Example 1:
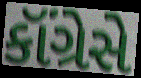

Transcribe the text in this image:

કૉંગ્રેસે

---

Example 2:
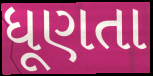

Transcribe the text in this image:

ધૂણતા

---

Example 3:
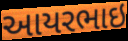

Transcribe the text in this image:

આયરભાઇ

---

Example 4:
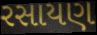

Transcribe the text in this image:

રસાયણ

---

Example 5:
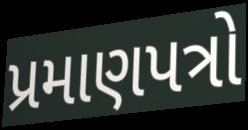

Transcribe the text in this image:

પ્રમાણપત્રો